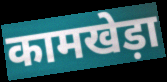
कामखेड़ा